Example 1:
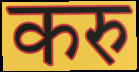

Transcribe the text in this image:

करु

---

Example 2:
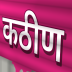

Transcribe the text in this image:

कठीण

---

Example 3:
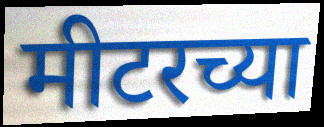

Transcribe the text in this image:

मीटरच्या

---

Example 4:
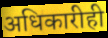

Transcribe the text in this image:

अधिकारीही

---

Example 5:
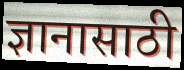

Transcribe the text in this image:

ज्ञानासाठी